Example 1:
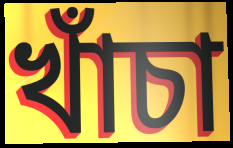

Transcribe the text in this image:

খাঁচা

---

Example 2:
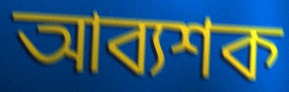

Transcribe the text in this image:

আব্যশক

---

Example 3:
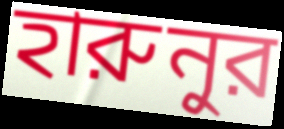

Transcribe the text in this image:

হারুনুর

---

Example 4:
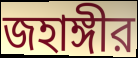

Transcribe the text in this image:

জহাঙ্গীর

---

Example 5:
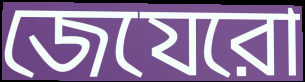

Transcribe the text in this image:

জেযেরো